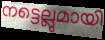
നട്ടെല്ലുമായി